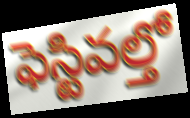
ఫెస్టివల్తో